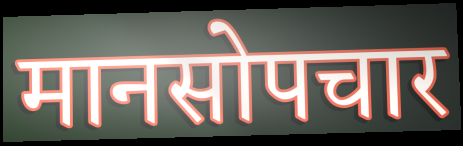
मानसोपचार